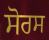
ਸੋਰਸ